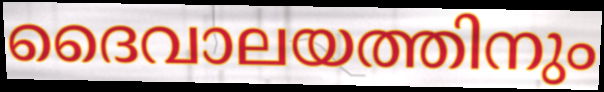
ദൈവാലയത്തിനും